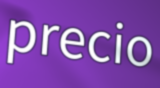
precio